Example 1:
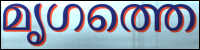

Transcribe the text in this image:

മൃഗത്തെ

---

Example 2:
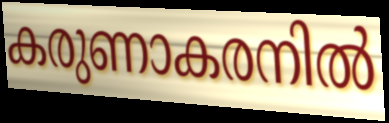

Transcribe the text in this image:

കരുണാകരനിൽ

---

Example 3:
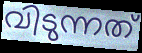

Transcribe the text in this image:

വിടുന്നത്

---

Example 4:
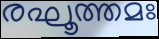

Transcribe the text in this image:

രഘൂത്തമഃ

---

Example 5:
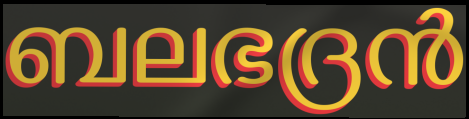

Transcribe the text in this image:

ബലഭദ്രൻ